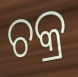
ଚକ୍ର